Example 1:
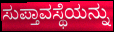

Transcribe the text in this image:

ಸುಪ್ತಾವಸ್ಥೆಯನ್ನು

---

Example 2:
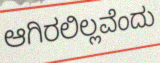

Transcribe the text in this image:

ಆಗಿರಲಿಲ್ಲವೆಂದು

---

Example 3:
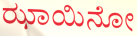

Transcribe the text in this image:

ಝಾಯಿನೋ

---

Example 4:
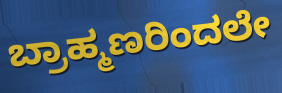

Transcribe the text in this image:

ಬ್ರಾಹ್ಮಣರಿಂದಲೇ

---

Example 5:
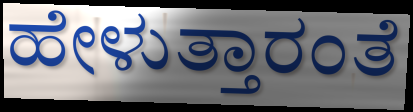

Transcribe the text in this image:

ಹೇಳುತ್ತಾರಂತೆ